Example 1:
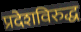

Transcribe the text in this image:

प्रदेशविरुद्ध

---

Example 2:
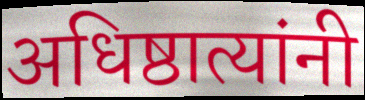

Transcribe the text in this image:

अधिष्ठात्यांनी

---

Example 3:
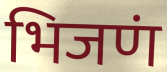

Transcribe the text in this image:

भिजणं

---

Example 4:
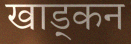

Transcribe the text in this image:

खाड्कन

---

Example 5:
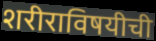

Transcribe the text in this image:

शरीराविषयीची